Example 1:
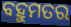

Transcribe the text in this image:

ବହୁମତର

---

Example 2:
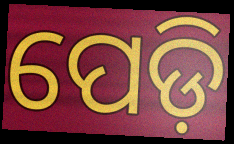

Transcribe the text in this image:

ପେଡ଼ି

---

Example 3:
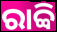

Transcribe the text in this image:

ରାବ୍ବି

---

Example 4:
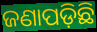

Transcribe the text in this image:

ଜଣାପଡ଼ିଛି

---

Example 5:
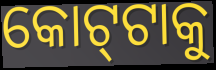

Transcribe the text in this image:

କୋଟ୍‌ଟାକୁ